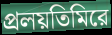
প্রলয়তিমিরে